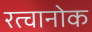
रत्चानोक